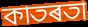
কাতৰতা